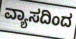
ವ್ಯಾಸದಿಂದ